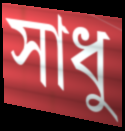
সাধু